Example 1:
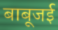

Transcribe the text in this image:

बाबूजई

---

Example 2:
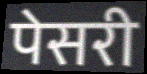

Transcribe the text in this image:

पेसरी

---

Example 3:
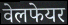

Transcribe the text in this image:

वेलफेयर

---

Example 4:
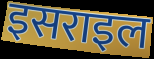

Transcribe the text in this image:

इसराइल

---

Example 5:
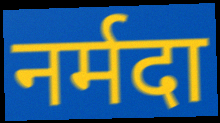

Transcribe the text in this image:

नर्मदा